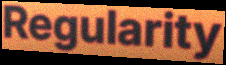
Regularity